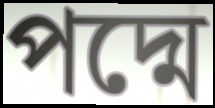
পদ্মে